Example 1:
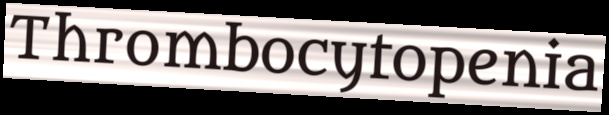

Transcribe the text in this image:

Thrombocytopenia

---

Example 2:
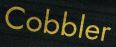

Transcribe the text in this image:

Cobbler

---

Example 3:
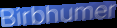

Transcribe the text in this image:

Birbhumer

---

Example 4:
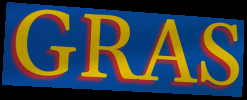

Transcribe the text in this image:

GRAS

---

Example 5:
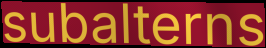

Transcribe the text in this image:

subalterns